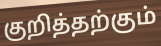
குறித்தற்கும்